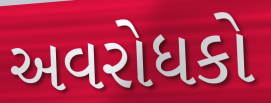
અવરોધકો